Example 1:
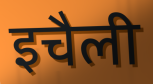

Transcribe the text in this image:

इचैली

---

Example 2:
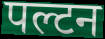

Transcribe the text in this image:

पल्टन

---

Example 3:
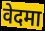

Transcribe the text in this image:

वेदमा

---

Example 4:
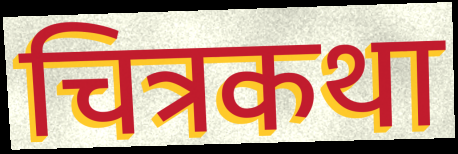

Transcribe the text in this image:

चित्रकथा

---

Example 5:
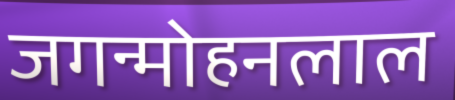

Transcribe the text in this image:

जगन्मोहनलाल